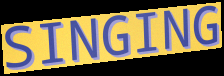
SINGING